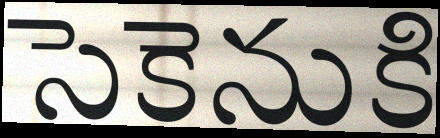
సెకెనుకి